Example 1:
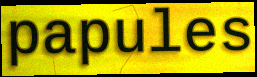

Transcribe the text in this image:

papules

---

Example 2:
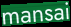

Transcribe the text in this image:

mansai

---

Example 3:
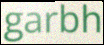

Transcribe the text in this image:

garbh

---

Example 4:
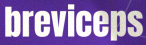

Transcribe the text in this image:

breviceps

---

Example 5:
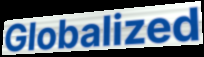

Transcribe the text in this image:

Globalized